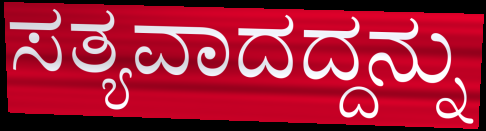
ಸತ್ಯವಾದದ್ದನ್ನು